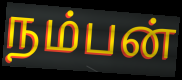
நம்பன்